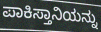
ಪಾಕಿಸ್ತಾನಿಯನ್ನು